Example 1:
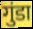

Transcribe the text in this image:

गुंडा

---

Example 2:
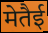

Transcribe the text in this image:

मेतैई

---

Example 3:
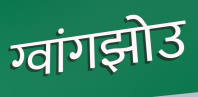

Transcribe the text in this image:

ग्वांगझोउ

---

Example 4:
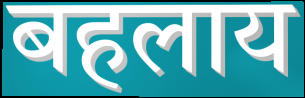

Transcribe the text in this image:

बहलाय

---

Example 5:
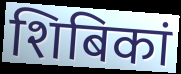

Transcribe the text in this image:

शिबिकां